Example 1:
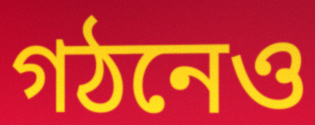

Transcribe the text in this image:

গঠনেও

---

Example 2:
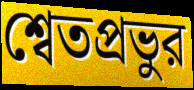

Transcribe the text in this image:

শ্বেতপ্রভুর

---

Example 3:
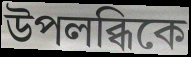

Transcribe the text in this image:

উপলব্ধিকে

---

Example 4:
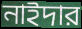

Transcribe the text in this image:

নাইদার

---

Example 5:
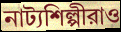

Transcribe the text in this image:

নাট্যশিল্পীরাও